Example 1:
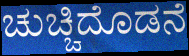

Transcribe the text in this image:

ಚುಚ್ಚಿದೊಡನೆ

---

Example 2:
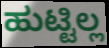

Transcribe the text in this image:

ಹುಟ್ಟಿಲ್ಲ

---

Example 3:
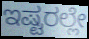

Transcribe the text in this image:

ಇಷ್ಟರಲ್ಲೇ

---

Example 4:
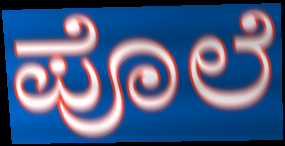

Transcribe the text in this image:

ಪೊಲೆ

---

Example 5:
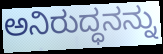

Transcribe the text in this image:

ಅನಿರುದ್ಧನನ್ನು